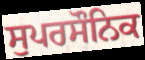
ਸੁਪਰਸੌਨਿਕ